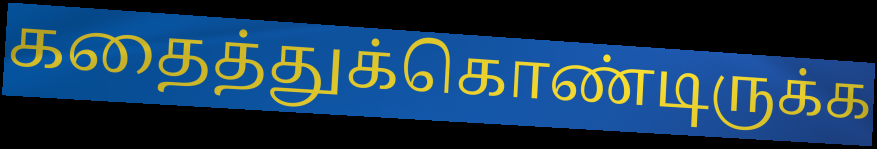
கதைத்துக்கொண்டிருக்க